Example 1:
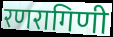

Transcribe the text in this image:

रणरागिणी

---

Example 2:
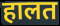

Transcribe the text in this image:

हालत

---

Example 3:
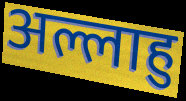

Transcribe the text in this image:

अल्लाहु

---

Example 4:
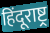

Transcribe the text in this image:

हिंदूराष्ट्र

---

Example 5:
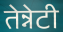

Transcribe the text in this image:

तेन्नेटी